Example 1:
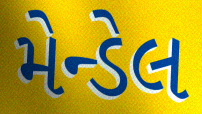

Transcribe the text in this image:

મેન્ડેલ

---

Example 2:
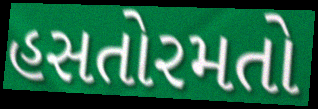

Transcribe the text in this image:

હસતોરમતો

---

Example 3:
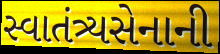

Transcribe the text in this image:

સ્વાતંત્ર્યસેનાની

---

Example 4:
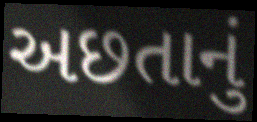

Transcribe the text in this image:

અછતાનું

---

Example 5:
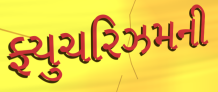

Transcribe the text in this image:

ફ્યુચરિઝમની